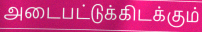
அடைபட்டுக்கிடக்கும்